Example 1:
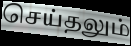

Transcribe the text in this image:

செய்தலும்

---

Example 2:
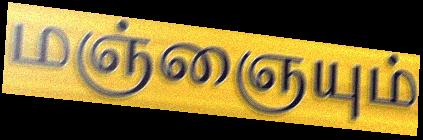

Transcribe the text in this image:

மஞ்ஞையும்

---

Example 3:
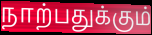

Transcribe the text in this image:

நாற்பதுக்கும்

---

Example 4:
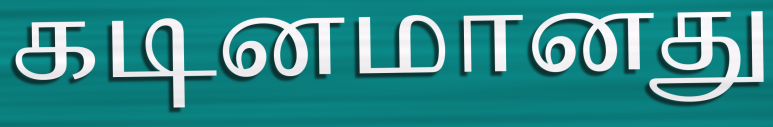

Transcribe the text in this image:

கடினமானது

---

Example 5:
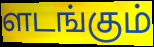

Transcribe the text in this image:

ளடங்கும்